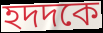
হদদকে